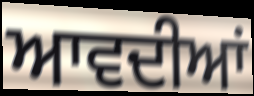
ਆਵਦੀਆਂ